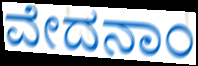
ವೇದನಾಂ